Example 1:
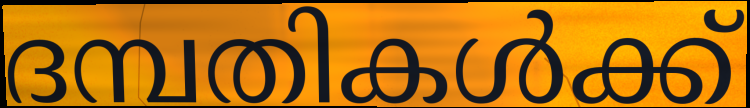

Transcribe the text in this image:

ദമ്പതികൾക്ക്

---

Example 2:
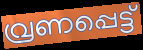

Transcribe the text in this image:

വ്രണപ്പെട്ട്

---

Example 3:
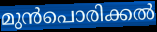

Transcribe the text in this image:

മുൻപൊരിക്കൽ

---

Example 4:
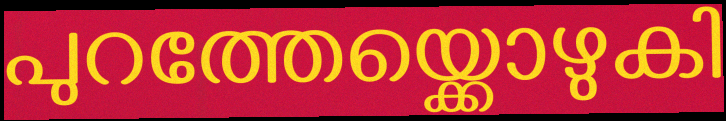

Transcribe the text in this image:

പുറത്തേയ്ക്കൊഴുകി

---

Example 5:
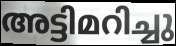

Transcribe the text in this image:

അട്ടിമറിച്ചു